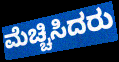
ಮೆಚ್ಚಿಸಿದರು